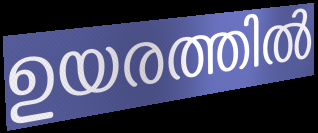
ഉയരത്തിൽ